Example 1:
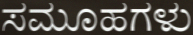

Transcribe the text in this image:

ಸಮೂಹಗಳು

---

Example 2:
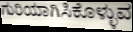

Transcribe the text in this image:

ಗುರಿಯಾಗಿಸಿಕೊಳ್ಳುವ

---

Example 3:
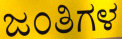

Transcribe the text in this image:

ಜಂತಿಗಳ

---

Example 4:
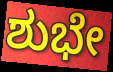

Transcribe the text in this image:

ಶುಭೇ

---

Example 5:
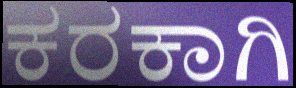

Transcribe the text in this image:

ಕರಕಾಗಿ